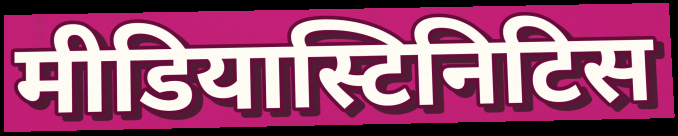
मीडियास्टिनिटिस